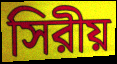
সিরীয়